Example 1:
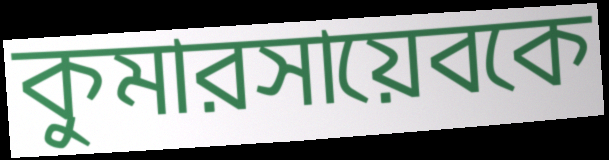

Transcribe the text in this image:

কুমারসায়েবকে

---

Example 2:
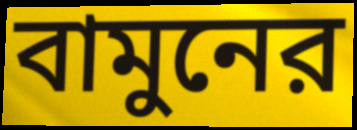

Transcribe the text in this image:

বামুনের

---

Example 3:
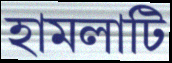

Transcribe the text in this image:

হামলাটি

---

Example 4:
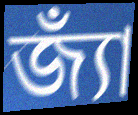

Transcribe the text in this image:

জ্যাঁ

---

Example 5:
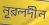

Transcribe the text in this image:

নূরলদীন